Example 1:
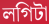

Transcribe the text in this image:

লগিটা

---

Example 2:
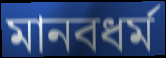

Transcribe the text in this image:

মানবধর্ম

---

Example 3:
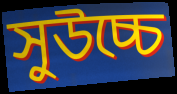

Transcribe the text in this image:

সুউচ্চে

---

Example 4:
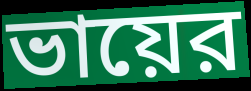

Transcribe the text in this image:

ভায়ের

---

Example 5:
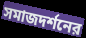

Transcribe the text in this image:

সমাজদর্শনের